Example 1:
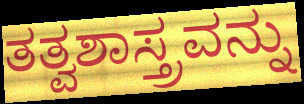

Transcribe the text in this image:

ತತ್ವಶಾಸ್ತ್ರವನ್ನು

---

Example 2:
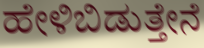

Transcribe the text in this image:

ಹೇಳಿಬಿಡುತ್ತೇನೆ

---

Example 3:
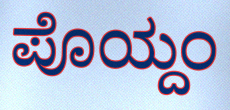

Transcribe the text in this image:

ಪೊಯ್ದಂ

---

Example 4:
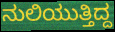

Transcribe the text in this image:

ನುಲಿಯುತ್ತಿದ್ದ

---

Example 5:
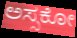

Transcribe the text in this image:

ಅಸ್ಸಕೋ